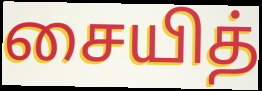
சையித்